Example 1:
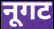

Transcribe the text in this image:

नूगट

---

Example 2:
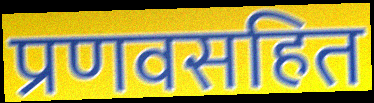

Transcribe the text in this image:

प्रणवसहित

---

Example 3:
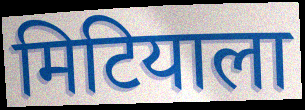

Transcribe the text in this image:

मिटियाला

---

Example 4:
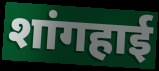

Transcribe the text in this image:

शांगहाई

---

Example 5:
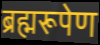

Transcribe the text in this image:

ब्रह्मरूपेण